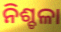
ନିଶ୍ଚଳା